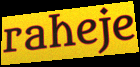
raheje